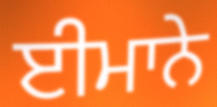
ਈਮਾਨੇ